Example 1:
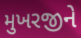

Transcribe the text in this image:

મુખરજીને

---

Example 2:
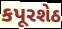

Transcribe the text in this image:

કપૂરશેઠ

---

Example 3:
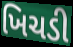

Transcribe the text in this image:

ખિચડી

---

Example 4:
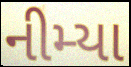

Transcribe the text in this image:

નીમ્યા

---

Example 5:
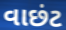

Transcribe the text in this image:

વાછંટ